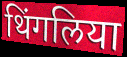
थिंगलिया